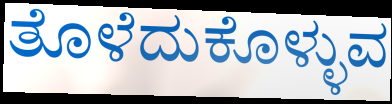
ತೊಳೆದುಕೊಳ್ಳುವ